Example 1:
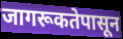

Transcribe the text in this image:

जागरूकतेपासून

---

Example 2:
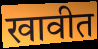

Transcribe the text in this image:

खावीत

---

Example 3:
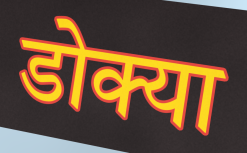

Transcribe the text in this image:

डोक्या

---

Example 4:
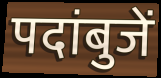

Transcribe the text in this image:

पदांबुजें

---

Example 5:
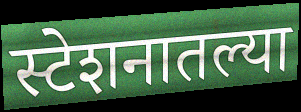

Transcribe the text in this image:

स्टेशनातल्या